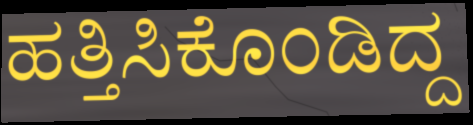
ಹತ್ತಿಸಿಕೊಂಡಿದ್ದ